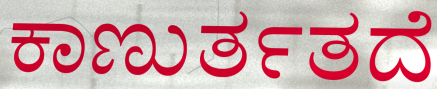
ಕಾಣುರ್ತತದೆ